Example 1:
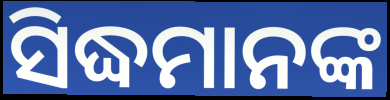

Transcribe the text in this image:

ସିଦ୍ଧମାନଙ୍କ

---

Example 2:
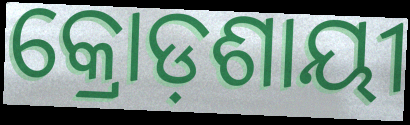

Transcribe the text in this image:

କ୍ରୋଡ଼ଶାୟୀ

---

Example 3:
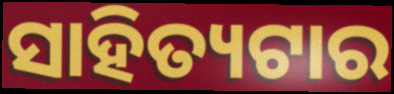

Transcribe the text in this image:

ସାହିତ୍ୟଟାର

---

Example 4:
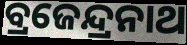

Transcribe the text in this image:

ବ୍ରଜେନ୍ଦ୍ରନାଥ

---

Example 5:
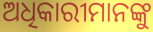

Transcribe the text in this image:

ଅଧିକାରୀମାନଙ୍କୁ